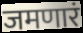
जमणारं